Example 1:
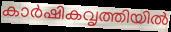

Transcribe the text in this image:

കാർഷികവൃത്തിയിൽ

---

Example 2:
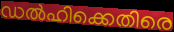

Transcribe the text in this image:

ഡൽഹിക്കെതിരെ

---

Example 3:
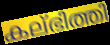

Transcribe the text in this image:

കല്ഭിത്തി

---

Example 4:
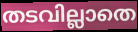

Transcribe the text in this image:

തടവില്ലാതെ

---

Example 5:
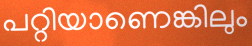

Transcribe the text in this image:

പറ്റിയാണെങ്കിലും